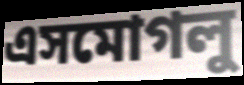
এসমোগলু